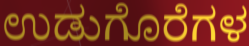
ಉಡುಗೊರೆಗಳ